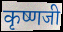
कृष्णजी